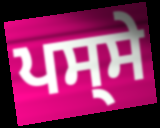
ਪਸ੍ਸੇ